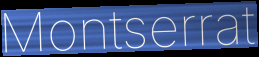
Montserrat